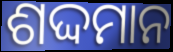
ଶଦ୍ଦମାନ